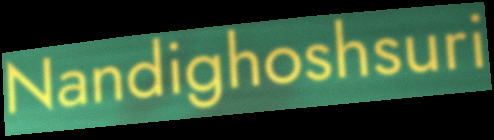
Nandighoshsuri